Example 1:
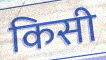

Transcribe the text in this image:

किसी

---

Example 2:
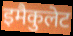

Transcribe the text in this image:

इमैकुलेट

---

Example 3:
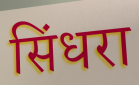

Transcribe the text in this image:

सिंधरा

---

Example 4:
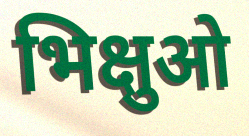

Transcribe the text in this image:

भिक्षुओ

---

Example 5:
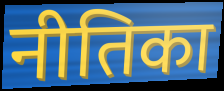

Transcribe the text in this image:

नीतिका